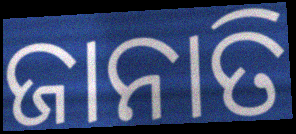
ଜାନାତି